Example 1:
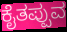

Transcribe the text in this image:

ಕೈತಪ್ಪುವ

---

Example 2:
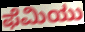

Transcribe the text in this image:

ಫೆಮಿಯು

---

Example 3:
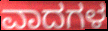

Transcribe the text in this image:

ವಾದಗಳ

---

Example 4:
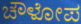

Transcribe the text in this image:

ಚೌಳೋಪ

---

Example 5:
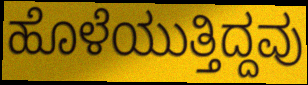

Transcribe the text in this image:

ಹೊಳೆಯುತ್ತಿದ್ದವು